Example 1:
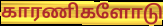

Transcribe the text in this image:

காரணிகளோடு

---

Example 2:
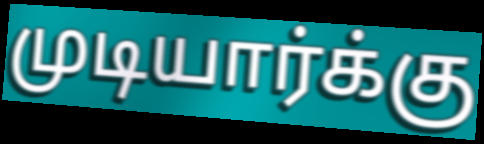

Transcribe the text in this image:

முடியார்க்கு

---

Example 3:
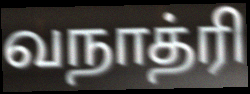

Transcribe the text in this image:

வநாத்ரி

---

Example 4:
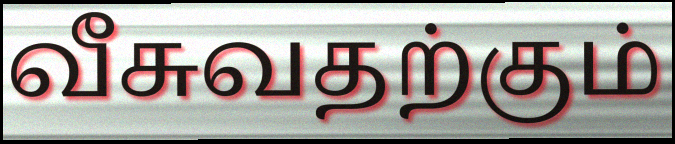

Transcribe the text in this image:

வீசுவதற்கும்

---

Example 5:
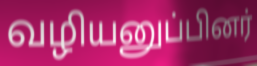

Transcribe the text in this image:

வழியனுப்பினர்